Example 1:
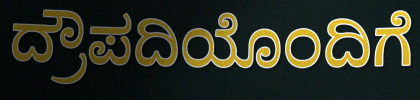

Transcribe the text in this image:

ದ್ರೌಪದಿಯೊಂದಿಗೆ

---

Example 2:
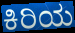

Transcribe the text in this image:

ಕಿರಿಯ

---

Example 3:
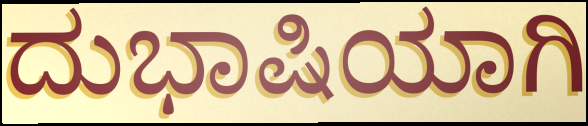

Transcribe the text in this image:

ದುಭಾಷಿಯಾಗಿ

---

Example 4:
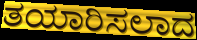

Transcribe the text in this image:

ತಯಾರಿಸಲಾದ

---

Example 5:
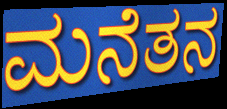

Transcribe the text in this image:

ಮನೆತನ